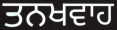
ਤਨਖਵਾਹ